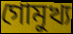
গোমুখ্য